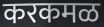
करकमळ